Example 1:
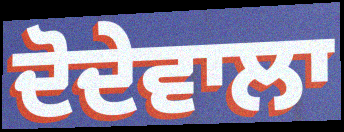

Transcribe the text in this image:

ਦੋਦੇਵਾਲਾ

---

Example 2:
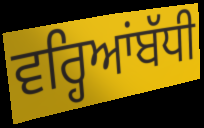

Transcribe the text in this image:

ਵਰ੍ਹਿਆਂਬੱਧੀ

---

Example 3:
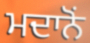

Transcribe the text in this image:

ਮਦਾਨੋਂ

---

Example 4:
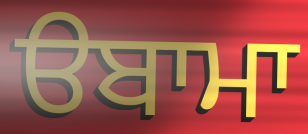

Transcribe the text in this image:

ੳਬਾਮਾ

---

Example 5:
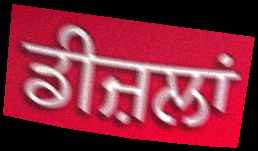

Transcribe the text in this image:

ਡੀਜ਼ਲਾਂ